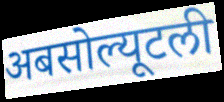
अबसोल्यूटली